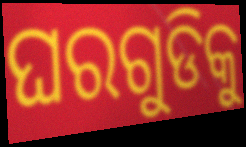
ଘରଗୁଡିକୁ